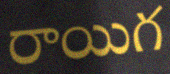
రాయిగ